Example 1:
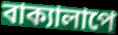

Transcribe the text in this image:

বাক্যালাপে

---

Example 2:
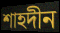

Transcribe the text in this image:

শাহদীন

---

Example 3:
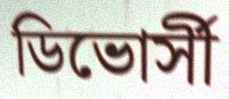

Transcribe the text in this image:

ডিভোর্সী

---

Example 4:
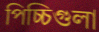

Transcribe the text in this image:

পিচ্চিগুলা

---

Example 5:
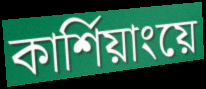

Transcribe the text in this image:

কার্শিয়াংয়ে